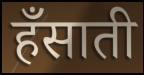
हँसाती